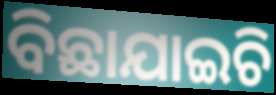
ବିଛାଯାଇଚି